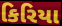
કિરિયા